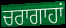
ਚਰਾਗਾਹਾਂ